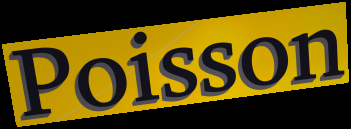
Poisson